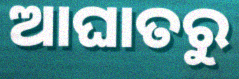
ଆଘାତରୁ